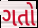
ગતો